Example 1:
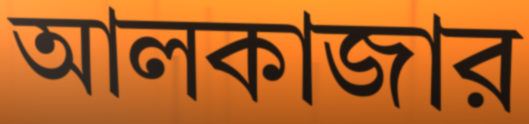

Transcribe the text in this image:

আলকাজার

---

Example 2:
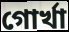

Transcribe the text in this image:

গোর্খা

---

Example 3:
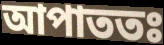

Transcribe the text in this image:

আপাততঃ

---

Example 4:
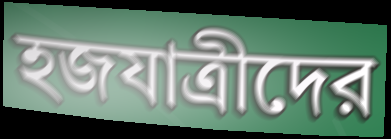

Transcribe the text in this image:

হজযাত্রীদের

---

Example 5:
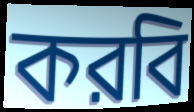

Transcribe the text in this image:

করবি